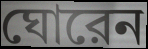
ঘোরেন